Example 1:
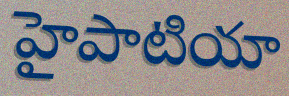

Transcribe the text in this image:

హైపాటియా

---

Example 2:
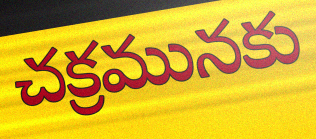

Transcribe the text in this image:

చక్రమునకు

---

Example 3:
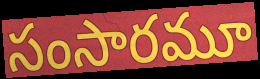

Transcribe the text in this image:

సంసారమూ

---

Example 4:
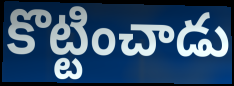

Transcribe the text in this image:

కొట్టించాడు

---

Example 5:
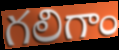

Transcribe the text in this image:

గలిగాం